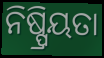
ନିଷ୍ପ୍ରିୟତା